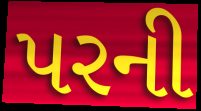
પરની